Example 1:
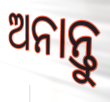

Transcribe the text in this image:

ଅନାନ୍ତୁ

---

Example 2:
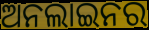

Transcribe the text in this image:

ଅନଲାଇନର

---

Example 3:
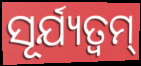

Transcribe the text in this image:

ସୂର୍ଯ୍ୟତ୍ୱମ୍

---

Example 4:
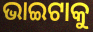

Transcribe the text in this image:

ଭାଇଟାକୁ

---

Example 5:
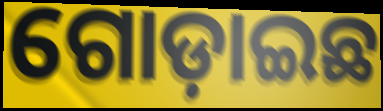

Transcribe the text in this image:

ଗୋଡ଼ାଇଛ